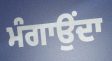
ਮੰਗਾਉਂਦਾ